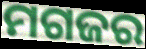
ମଗଜର